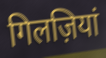
गिलज़ियां